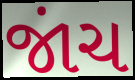
જાંચ